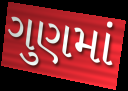
ગુણમાં